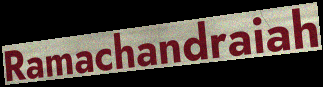
Ramachandraiah